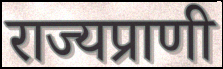
राज्यप्राणी